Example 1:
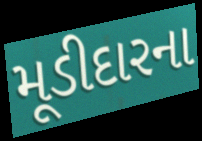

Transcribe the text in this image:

મૂડીદારના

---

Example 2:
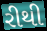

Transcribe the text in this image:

રીથી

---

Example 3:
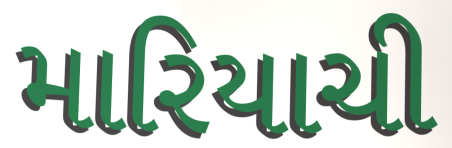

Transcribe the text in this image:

મારિયાચી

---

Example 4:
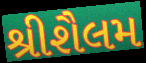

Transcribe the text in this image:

શ્રીશૈલમ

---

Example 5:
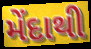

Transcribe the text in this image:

મેંદાથી